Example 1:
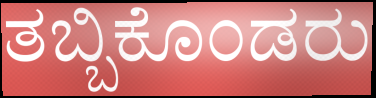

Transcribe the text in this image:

ತಬ್ಬಿಕೊಂಡರು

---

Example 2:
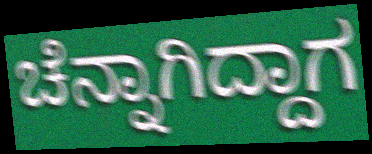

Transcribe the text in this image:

ಚೆನ್ನಾಗಿದ್ದಾಗ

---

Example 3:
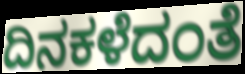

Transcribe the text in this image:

ದಿನಕಳೆದಂತೆ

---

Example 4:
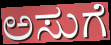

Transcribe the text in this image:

ಅಸುಗೆ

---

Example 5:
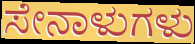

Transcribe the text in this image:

ಸೇನಾಳುಗಳು